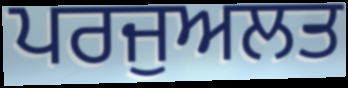
ਪਰਜੁਅਲਤ